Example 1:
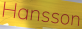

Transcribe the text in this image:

Hansson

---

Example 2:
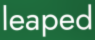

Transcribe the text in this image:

leaped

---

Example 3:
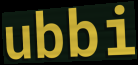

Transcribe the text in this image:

ubbi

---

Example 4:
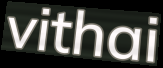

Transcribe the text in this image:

vithai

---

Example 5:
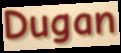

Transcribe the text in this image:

Dugan